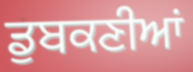
ਡੁਬਕਣੀਆਂ